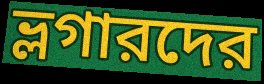
ভ্লগারদের